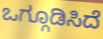
ಒಗ್ಗೂಡಿಸಿದೆ